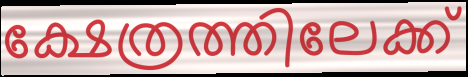
ക്ഷേത്രത്തിലേക്ക്